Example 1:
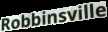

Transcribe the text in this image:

Robbinsville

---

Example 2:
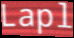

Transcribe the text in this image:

Lapl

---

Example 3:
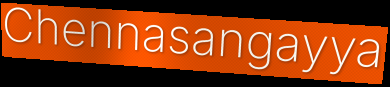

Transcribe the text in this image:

Chennasangayya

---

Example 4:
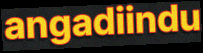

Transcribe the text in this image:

angadiindu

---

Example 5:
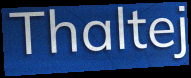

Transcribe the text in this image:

Thaltej